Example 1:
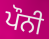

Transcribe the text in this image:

ਪੌਨੀ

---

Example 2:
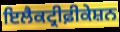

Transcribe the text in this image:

ਇਲੈਕਟ੍ਰੀਫ਼ੀਕੇਸ਼ਨ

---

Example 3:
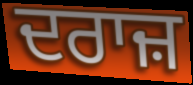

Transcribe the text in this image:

ਦਰਾਜ਼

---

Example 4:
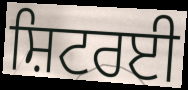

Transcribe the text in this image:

ਸ਼ਿਟਰਈ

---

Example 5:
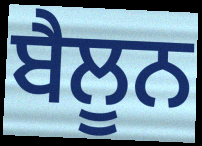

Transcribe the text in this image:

ਬੈਲੂਨ